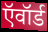
ऍवॉर्ड